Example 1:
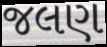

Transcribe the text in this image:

જલણ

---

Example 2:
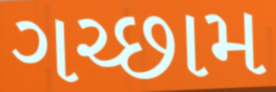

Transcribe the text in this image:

ગચ્છામ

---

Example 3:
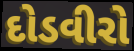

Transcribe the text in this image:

દોડવીરો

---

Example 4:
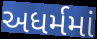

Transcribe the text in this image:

અધર્મમાં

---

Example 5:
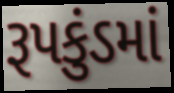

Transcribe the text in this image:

રૂપકુંડમાં